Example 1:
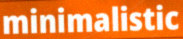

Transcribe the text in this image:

minimalistic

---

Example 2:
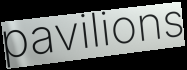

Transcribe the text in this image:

pavilions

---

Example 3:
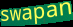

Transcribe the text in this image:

swapan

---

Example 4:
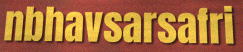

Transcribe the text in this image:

nbhavsarsafri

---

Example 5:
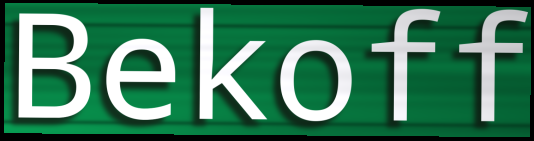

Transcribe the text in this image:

Bekoff